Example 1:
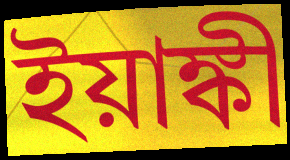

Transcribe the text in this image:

ইয়াঙ্কী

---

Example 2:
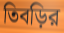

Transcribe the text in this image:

তিবড়ির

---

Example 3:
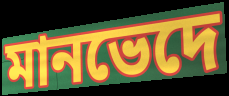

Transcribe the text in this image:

মানভেদে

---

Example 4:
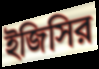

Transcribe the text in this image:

ইজিসির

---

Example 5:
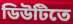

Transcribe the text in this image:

ডিউটিতে